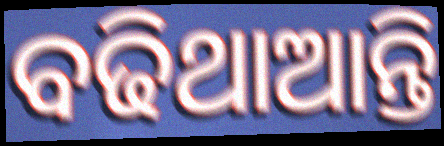
ବଢିଥାଆନ୍ତି